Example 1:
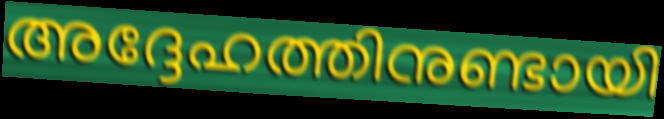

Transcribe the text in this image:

അദ്ദേഹത്തിനുണ്ടായി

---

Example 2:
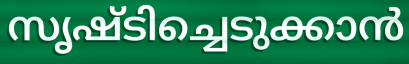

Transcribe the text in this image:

സൃഷ്ടിച്ചെടുക്കാൻ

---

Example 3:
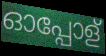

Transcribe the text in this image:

ഓപ്പോള്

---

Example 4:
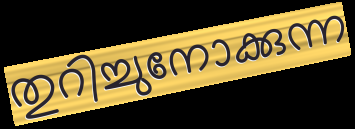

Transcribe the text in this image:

തുറിച്ചുനോക്കുന്ന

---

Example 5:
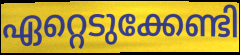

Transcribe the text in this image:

ഏറ്റെടുക്കേണ്ടി